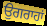
ਉਗਰਾਹਾਂ